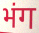
भंग